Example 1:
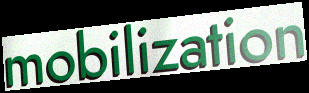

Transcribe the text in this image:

mobilization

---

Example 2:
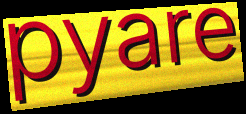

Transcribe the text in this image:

pyare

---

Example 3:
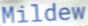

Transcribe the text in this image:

Mildew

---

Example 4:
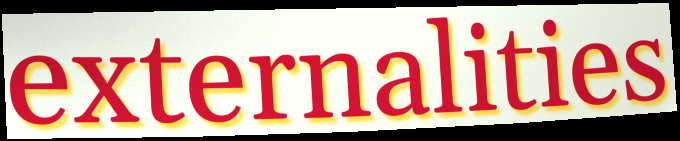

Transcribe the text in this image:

externalities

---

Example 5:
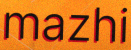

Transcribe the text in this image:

mazhi